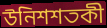
উনিশশতকী